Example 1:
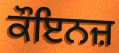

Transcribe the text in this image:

ਕੌਇਨਜ਼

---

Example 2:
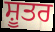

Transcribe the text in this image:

ਸ਼ੂਤਰ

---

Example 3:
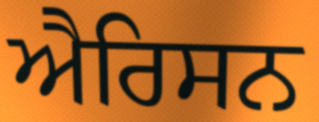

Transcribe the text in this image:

ਐਰਿਸਨ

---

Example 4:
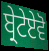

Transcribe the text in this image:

ਬ੍ਰੇਟੇਏਵੋ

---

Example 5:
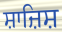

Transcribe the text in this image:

ਸ਼ਾਜ਼ਿਸ਼